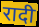
रादी